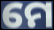
ମେ